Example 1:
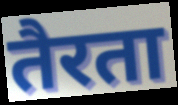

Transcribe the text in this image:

तैरता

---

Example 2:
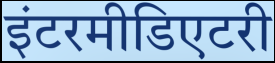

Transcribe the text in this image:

इंटरमीडिएटरी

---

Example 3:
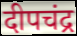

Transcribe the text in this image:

दीपचंद्र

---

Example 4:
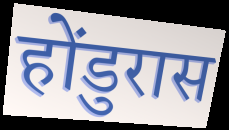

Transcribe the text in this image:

होंडुरास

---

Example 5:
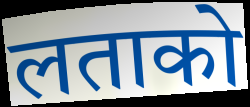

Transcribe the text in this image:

लताको